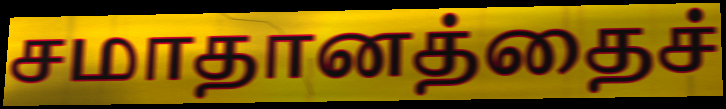
சமாதானத்தைச்